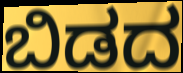
ಬಿಡದ